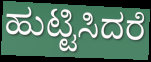
ಹುಟ್ಟಿಸಿದರೆ